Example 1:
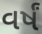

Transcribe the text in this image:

વર્ષં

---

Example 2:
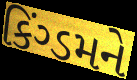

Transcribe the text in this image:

કિંગ્ડમને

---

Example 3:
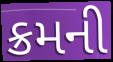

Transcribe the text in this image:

ક્રમની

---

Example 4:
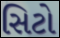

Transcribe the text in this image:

સિટો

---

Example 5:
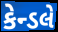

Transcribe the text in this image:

કેન્ડલે